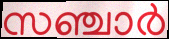
സഞ്ചാർ